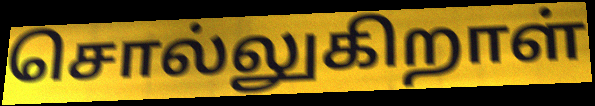
சொல்லுகிறாள்